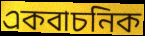
একবাচনিক